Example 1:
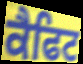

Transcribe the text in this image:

ਕੈਫਿਟ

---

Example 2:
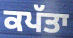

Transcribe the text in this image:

ਕਪੱਤਾ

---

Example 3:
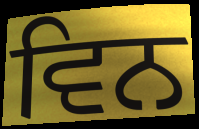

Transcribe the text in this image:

ਵਿਨ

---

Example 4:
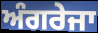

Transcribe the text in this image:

ਅੰਗਰੇਜਾ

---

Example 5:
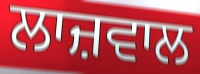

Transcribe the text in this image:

ਲਾਜ਼ਵਾਲ